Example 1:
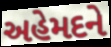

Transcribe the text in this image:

અહેમદને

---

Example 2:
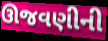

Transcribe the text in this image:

ઊજવણીની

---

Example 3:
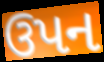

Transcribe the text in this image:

ઉપન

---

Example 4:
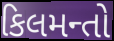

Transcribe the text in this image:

કિલમન્તો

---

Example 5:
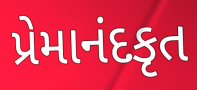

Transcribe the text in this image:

પ્રેમાનંદકૃત